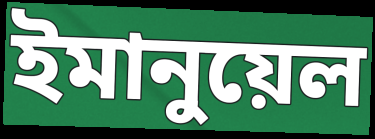
ইমানুয়েল